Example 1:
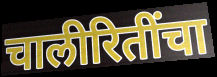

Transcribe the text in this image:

चालीरितींचा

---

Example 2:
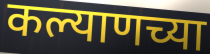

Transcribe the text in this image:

कल्याणच्या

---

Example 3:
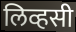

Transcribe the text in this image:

लिव्हसी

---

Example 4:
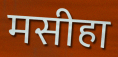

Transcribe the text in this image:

मसीहा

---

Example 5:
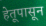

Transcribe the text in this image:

हेतूपासून